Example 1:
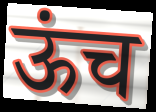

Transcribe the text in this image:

ऊंच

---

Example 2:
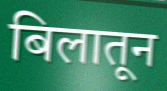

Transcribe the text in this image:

बिलातून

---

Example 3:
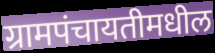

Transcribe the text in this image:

ग्रामपंचायतीमधील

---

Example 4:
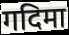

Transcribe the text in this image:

गदिमा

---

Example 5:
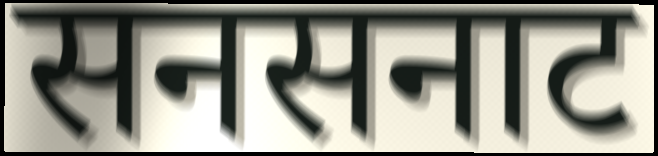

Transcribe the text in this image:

सनसनाट